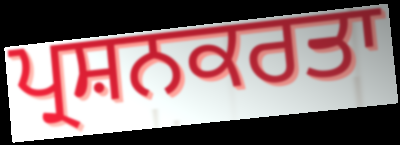
ਪ੍ਰਸ਼ਨਕਰਤਾ